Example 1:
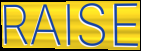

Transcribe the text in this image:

RAISE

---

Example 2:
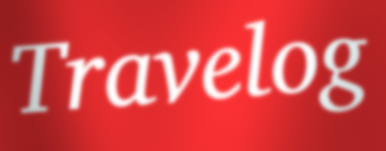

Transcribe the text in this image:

Travelog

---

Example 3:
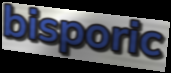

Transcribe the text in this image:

bisporic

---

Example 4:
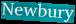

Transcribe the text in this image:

Newbury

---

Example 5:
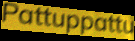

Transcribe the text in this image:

Pattuppattu